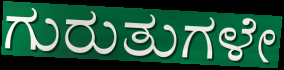
ಗುರುತುಗಳೇ